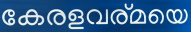
കേരളവര്മയെ